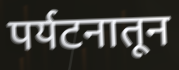
पर्यटनातून